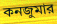
কনজুমার